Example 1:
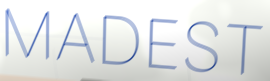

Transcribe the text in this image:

MADEST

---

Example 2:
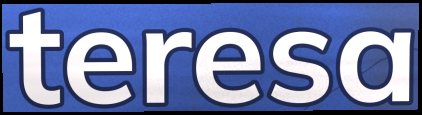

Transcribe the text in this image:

teresa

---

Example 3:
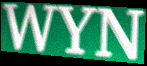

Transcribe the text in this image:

WYN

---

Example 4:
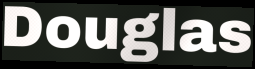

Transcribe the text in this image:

Douglas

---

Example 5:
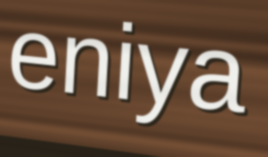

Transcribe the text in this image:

eniya